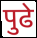
पुढे